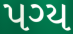
પગ્ય